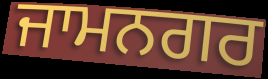
ਜਾਮਨਗਰ